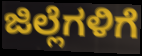
ಜಿಲ್ಲೆಗಳಿಗೆ